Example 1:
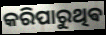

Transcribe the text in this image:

କରିପାରୁଥିଵ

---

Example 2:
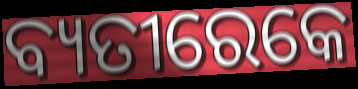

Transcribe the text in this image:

ବ୍ୟତୀରେକେ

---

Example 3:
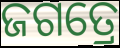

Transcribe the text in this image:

ଜଗତ୍ରେ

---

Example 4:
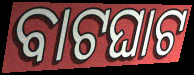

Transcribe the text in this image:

ବାଟଘାଟ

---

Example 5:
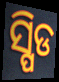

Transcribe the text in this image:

ସ୍ପିଡ